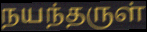
நயந்தருள்